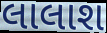
લાલાશ